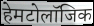
हेमटोलॉजिक